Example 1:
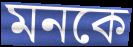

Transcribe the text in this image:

মনকে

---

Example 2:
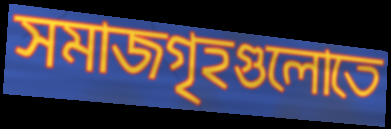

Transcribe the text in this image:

সমাজগৃহগুলোতে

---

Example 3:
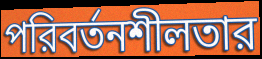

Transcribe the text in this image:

পরিবর্তনশীলতার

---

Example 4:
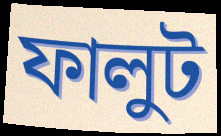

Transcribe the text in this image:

ফালুট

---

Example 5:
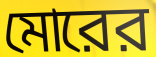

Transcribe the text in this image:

মোরের